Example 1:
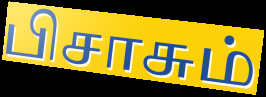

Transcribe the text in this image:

பிசாசும்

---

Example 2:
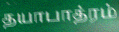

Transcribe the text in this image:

தயாபாத்ரம்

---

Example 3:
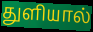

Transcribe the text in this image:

துளியால்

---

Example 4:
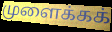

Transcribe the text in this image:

முளைக்கக்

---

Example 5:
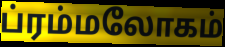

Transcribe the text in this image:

ப்ரம்மலோகம்